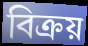
বিক্ৰয়